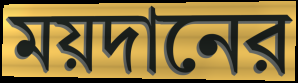
ময়দানের